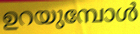
ഉറയുമ്പോൾ